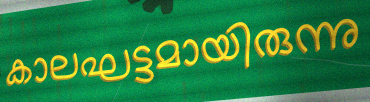
കാലഘട്ടമായിരുന്നു